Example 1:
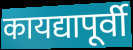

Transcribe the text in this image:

कायद्यापूर्वी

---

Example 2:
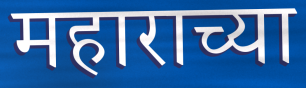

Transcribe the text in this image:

महाराच्या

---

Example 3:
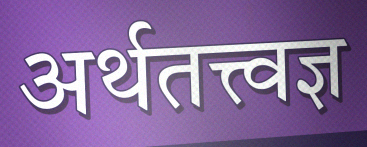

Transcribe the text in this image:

अर्थतत्त्वज्ञ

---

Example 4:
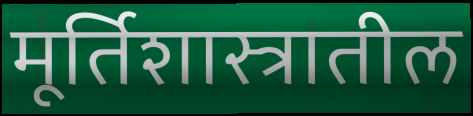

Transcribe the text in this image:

मूर्तिशास्त्रातील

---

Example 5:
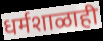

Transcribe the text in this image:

धर्मशाळाही